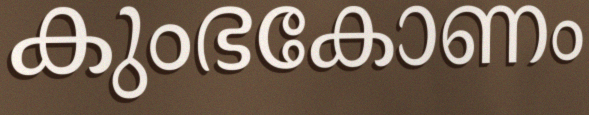
കുംഭകോണം